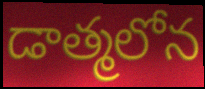
డాత్మలోన